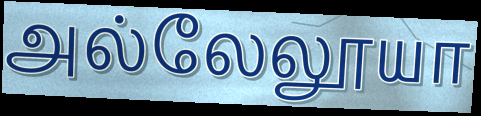
அல்லேலூயா